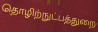
தொழிற்நுட்பத்துறை